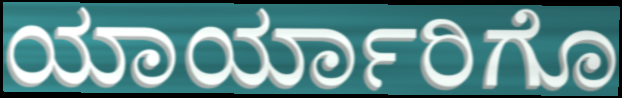
ಯಾರ್ಯಾರಿಗೊ